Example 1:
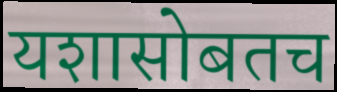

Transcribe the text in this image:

यशासोबतच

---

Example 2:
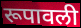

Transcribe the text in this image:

रूपावली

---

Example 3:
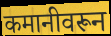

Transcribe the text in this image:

कमानीवरून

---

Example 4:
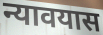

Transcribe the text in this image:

न्यावयास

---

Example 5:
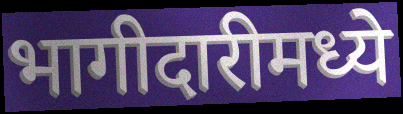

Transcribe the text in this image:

भागीदारीमध्ये